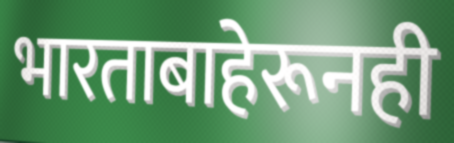
भारताबाहेरूनही